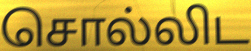
சொல்லிட